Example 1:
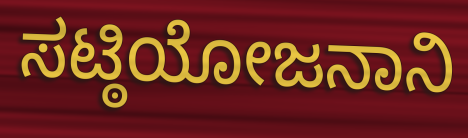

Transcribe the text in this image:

ಸಟ್ಠಿಯೋಜನಾನಿ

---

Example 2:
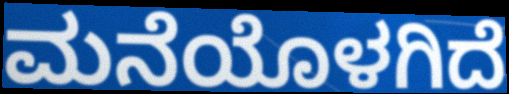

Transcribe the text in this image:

ಮನೆಯೊಳಗಿದೆ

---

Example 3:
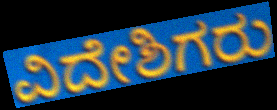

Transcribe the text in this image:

ವಿದೇಶಿಗರು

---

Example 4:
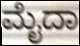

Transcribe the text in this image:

ಮೈದಾ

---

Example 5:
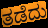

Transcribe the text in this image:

ತಡೆದು